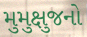
મુમુક્ષુજનો